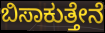
ಬಿಸಾಕುತ್ತೇನೆ